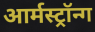
आर्मस्ट्रॉन्ग